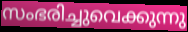
സംഭരിച്ചുവെക്കുന്നു